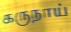
கருநாய்